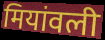
मियांवली